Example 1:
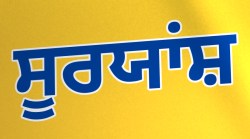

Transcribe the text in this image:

ਸੂਰਯਾਂਸ਼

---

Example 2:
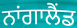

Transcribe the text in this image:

ਨਾਂਗਾਲੈਂਡ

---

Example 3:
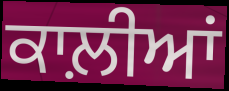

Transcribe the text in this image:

ਕਾਲ਼ੀਆਂ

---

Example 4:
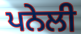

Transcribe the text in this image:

ਪਨੇਲੀ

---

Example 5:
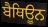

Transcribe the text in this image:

ਬੈਥਿਊਨ